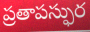
ప్రతాపస్ఫుర